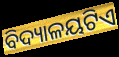
ବିଦ୍ୟାଳୟଟିଏ